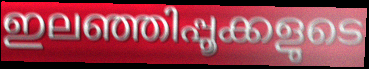
ഇലഞ്ഞിപ്പൂക്കളുടെ